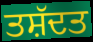
ਤਸ਼ੱਦਤ